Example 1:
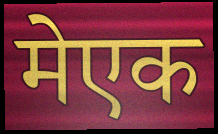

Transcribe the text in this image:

मेएक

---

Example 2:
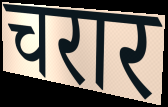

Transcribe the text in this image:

चरार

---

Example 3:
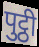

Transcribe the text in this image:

पुट्ठी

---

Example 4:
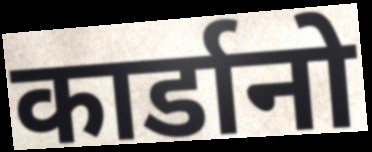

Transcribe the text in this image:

कार्डानो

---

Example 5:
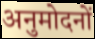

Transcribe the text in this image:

अनुमोदनों